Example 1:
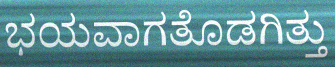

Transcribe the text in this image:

ಭಯವಾಗತೊಡಗಿತ್ತು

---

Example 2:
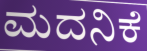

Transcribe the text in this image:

ಮದನಿಕೆ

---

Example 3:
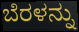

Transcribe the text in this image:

ಬೆರಳನ್ನು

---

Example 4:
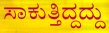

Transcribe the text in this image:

ಸಾಕುತ್ತಿದ್ದದ್ದು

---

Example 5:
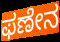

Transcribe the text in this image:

ಫಣೇನ